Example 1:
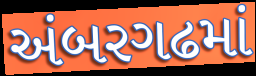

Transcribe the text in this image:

અંબરગઢમાં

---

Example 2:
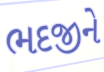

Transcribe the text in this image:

ભદજીને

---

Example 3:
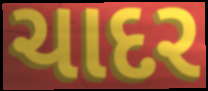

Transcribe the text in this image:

ચાદર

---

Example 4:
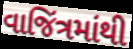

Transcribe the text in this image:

વાજિંત્રમાંથી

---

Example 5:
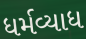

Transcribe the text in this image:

ધર્મવ્યાધ